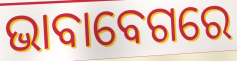
ଭାବାବେଗରେ